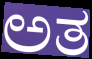
ಅತ